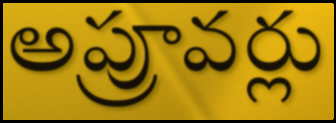
అప్రూవర్లు